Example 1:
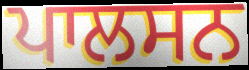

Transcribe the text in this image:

ਪਾਲਸਨ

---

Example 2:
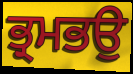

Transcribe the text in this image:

ਭ੍ਰਮਭਉ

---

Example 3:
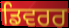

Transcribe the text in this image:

ਡਿਵਰਰ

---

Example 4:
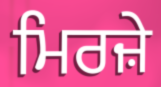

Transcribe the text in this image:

ਮਿਰਜ਼ੇ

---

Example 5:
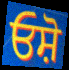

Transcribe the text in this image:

ਓਸ਼ੋ